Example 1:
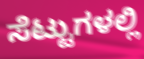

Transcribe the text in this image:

ಸೆಟ್ಟುಗಳಲ್ಲಿ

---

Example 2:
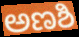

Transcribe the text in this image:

ಅಣಶಿ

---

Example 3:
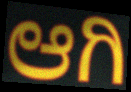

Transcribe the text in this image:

ಆಗಿ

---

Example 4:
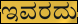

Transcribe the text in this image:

ಇವರದು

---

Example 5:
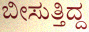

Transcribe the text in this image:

ಬೀಸುತ್ತಿದ್ದ